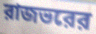
রাজভরের